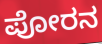
ಪೋರನ